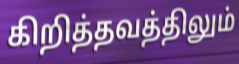
கிறித்தவத்திலும்